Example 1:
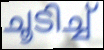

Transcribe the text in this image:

ചൂടിച്ച്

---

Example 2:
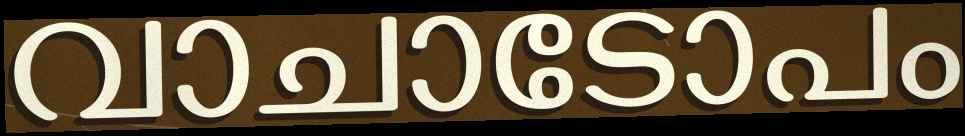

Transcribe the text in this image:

വാചാടോപം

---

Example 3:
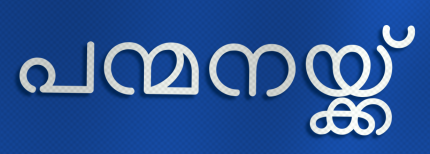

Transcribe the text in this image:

പന്മനയ്ക്ക്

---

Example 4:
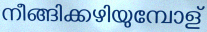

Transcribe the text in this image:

നീങ്ങിക്കഴിയുമ്പോള്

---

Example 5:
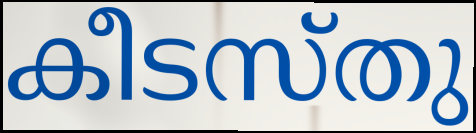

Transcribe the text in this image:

കീടസ്തു